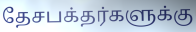
தேசபக்தர்களுக்கு